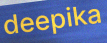
deepika